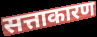
सत्ताकारण